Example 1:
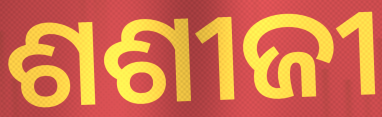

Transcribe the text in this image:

ଶଶୀଜୀ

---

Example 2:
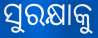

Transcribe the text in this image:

ସୁରକ୍ଷାକୁ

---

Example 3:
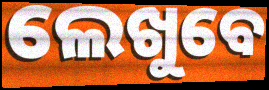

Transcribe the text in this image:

ଲେଖୁବେ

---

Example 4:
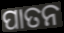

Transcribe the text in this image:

ପାତନ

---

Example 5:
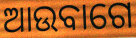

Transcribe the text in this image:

ଆଉବାଗେ